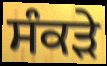
ਸੰਕੜੇ